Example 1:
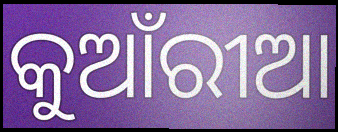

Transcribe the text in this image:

କୁଆଁରୀଆ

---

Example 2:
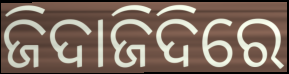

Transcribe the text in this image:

ଜିଦାଜିଦିରେ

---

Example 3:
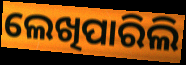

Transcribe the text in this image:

ଲେଖିପାରିଲି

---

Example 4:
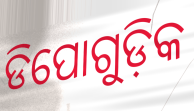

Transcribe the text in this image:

ଡିପୋଗୁଡ଼ିକ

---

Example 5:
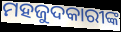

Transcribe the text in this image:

ମହଜୁଦକାରୀଙ୍କ